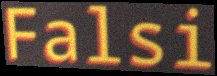
Falsi